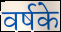
वर्षके